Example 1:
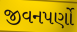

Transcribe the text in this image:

જીવનપર્ણો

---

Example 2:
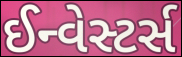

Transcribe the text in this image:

ઈન્વેસ્ટર્સ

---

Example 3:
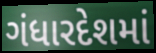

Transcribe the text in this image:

ગંધારદેશમાં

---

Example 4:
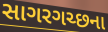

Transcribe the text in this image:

સાગરગચ્છના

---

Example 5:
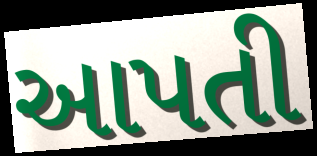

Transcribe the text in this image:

આપતી